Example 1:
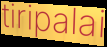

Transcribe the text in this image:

tiripalai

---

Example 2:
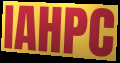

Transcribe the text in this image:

IAHPC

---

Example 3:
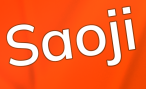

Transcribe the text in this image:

Saoji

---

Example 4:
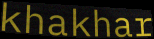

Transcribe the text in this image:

khakhar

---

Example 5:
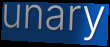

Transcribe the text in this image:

unary